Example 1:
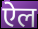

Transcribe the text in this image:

ऐल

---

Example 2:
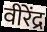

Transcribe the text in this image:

वीरेंद्र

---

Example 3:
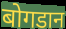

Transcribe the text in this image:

बोगडान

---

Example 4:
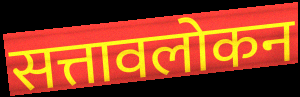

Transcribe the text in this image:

सत्तावलोकन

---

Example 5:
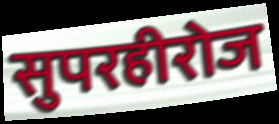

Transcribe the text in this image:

सुपरहीरोज